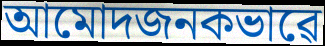
আমোদজনকভাৱে